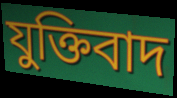
যুক্তিবাদ